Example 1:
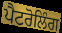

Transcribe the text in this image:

ਪੈਟਰੋਲਿੰਗ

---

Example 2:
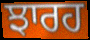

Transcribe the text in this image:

ਝਾਰਹ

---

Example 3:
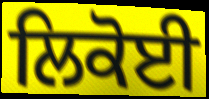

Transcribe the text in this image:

ਲਿਕੋਈ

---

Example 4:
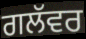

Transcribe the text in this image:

ਗਲੱਵਰ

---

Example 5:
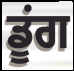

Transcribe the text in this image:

ਡੂਂਗ